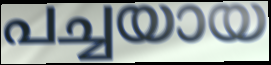
പച്ചയായ